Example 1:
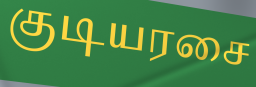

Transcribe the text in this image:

குடியரசை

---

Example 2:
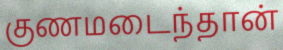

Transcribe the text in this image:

குணமடைந்தான்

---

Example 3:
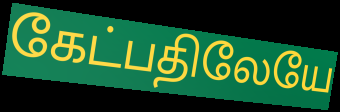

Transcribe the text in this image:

கேட்பதிலேயே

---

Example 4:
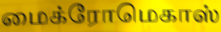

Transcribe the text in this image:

மைக்ரோமெகாஸ்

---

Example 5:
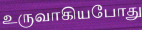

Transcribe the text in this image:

உருவாகியபோது